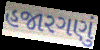
હજારગણું